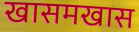
खासमखास